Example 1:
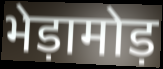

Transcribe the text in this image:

भेड़ामोड़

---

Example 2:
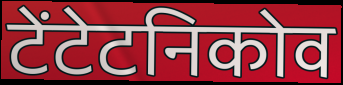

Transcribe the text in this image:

टेंटेटनिकोव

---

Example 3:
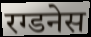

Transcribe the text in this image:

रग्डनेस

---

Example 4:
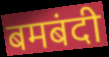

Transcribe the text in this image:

बमबंदी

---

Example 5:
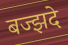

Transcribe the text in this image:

बज्झदे